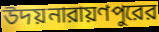
উদয়নারায়ণপুরের